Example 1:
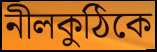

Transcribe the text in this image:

নীলকুঠিকে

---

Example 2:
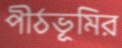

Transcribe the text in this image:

পীঠভূমির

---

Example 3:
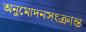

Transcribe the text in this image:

অনুমোদনসংক্রান্ত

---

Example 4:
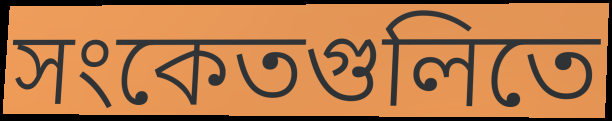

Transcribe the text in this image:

সংকেতগুলিতে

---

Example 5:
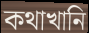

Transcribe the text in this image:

কথাখানি